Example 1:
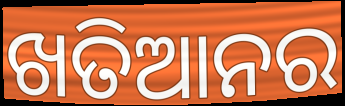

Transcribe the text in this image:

ଖତିଆନର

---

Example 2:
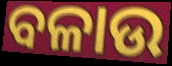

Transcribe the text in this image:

ବଳାଉ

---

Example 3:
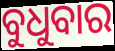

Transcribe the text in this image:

ବୁଧୁବାର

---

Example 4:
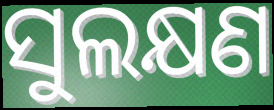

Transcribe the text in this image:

ସୁଲକ୍ଷଣ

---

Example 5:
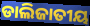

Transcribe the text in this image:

ଡାଲିଜାତୀୟ